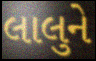
લાલુને